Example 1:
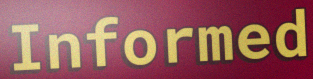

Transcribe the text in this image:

Informed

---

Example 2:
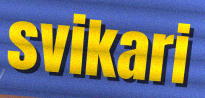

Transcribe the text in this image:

svikari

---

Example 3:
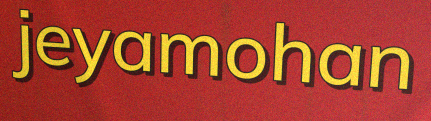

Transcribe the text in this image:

jeyamohan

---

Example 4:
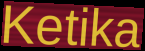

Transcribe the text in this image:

Ketika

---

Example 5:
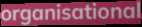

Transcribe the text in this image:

organisational